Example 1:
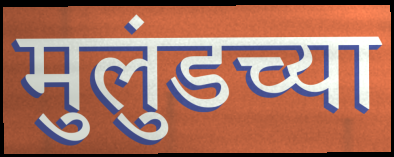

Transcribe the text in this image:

मुलुंडच्या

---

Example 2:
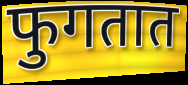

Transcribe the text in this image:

फुगतात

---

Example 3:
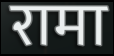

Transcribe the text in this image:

रामा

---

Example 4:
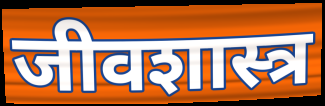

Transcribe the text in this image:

जीवशास्त्र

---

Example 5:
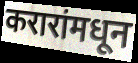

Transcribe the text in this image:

करारांमधून